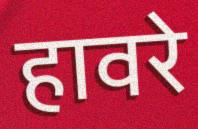
हावरे